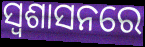
ସ୍ଵଶାସନରେ